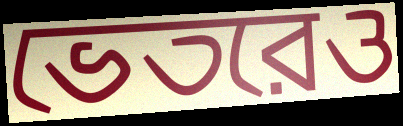
ভেতরেও